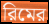
রিমের